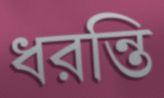
ধরন্তি